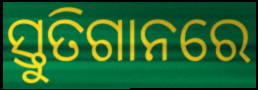
ସ୍ତୁତିଗାନରେ